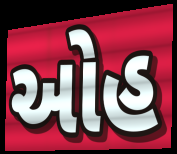
ઓહ